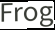
Frog